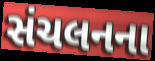
સંચલનના